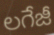
లగేజీ